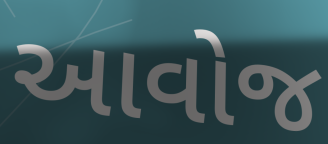
આવોજ